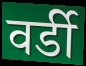
वर्डी